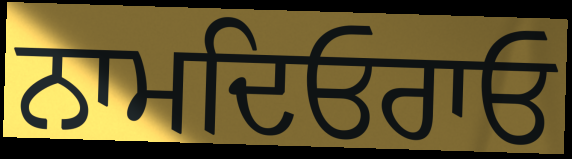
ਨਾਮਦਿਓਰਾਓ